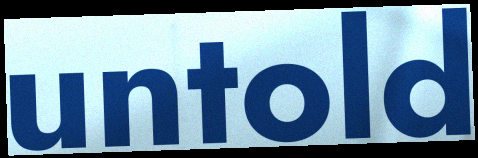
untold